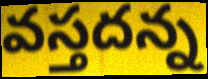
వస్తదన్న